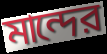
মান্দের